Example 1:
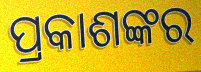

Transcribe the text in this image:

ପ୍ରକାଶଙ୍କର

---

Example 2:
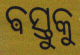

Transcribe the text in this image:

ଵସ୍ତୁକୁ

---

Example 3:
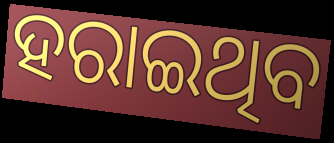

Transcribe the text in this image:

ହରାଇଥିବ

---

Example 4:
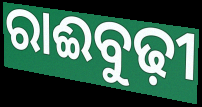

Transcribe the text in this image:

ରାଈବୁଢ଼ୀ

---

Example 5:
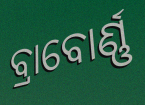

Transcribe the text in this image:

ବ୍ରାବୋର୍ଣ୍ଣ